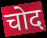
चोद